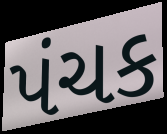
પંચક